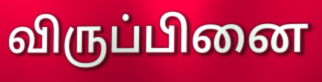
விருப்பினை